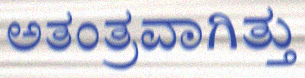
ಅತಂತ್ರವಾಗಿತ್ತು